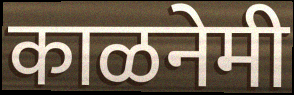
काळनेमी